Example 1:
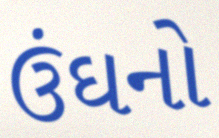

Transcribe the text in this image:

ઉંઘનો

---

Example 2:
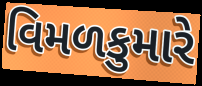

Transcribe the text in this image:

વિમળકુમારે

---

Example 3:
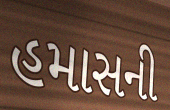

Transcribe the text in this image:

હમાસની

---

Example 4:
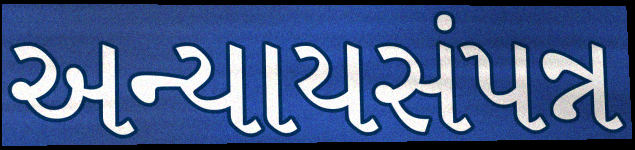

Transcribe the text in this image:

અન્યાયસંપન્ન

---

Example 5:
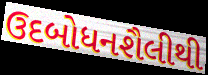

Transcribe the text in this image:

ઉદબોધનશૈલીથી